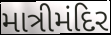
માત્રીમંદિર